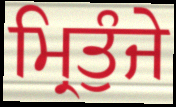
ਮ੍ਰਿਤੁੰਜੇ